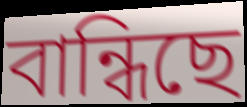
বান্ধিছে